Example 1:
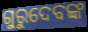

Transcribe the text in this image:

ଗୁରୁଦେବଙ୍କ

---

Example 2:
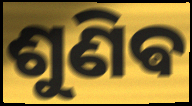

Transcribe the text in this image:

ଶୁଣିଵ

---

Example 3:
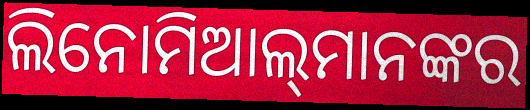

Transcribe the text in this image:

ଲିନୋମିଆଲ୍‌ମାନଙ୍କର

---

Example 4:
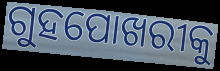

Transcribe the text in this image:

ଗୁହପୋଖରୀକୁ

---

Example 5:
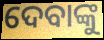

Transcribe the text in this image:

ଦେବାଙ୍କୁ